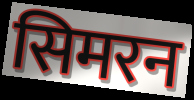
सिमरन